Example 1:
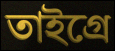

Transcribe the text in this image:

তাইগ্রে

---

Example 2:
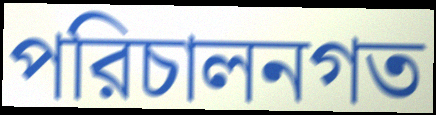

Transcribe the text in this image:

পরিচালনগত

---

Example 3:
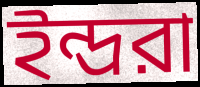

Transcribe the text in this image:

ইন্দ্ররা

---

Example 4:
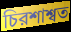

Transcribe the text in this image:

চিরশাশ্বত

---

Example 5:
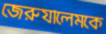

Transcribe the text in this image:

জেরুযালেমকে